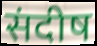
संदीष